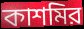
কাশমির